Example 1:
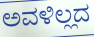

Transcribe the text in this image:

ಅವಳಿಲ್ಲದ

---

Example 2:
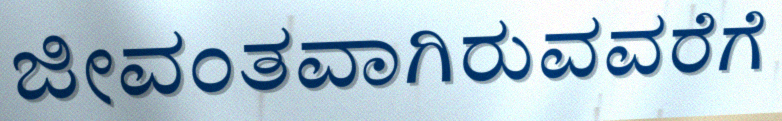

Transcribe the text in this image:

ಜೀವಂತವಾಗಿರುವವರೆಗೆ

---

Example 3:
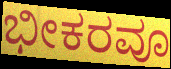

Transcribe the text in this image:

ಭೀಕರವೂ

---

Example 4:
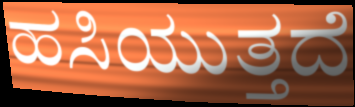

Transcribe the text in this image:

ಹಸಿಯುತ್ತದೆ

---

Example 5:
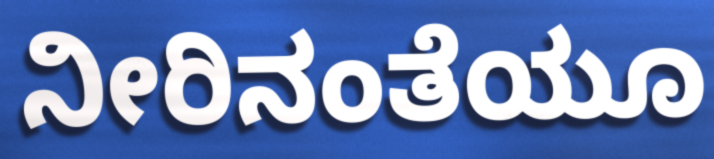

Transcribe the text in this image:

ನೀರಿನಂತೆಯೂ